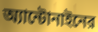
অ্যান্টোনাইনের